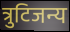
त्रुटिजन्य